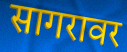
सागरावर